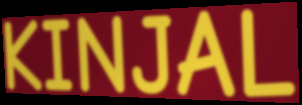
KINJAL